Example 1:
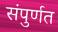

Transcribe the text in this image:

संपुर्णत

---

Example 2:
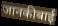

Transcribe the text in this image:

जानकीबाई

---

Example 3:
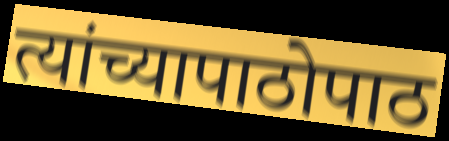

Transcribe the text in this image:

त्यांच्यापाठोपाठ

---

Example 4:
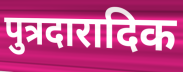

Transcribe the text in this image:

पुत्रदारादिक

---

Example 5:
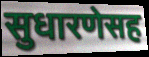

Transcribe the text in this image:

सुधारणेसह